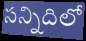
సన్నిదిలో